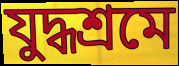
যুদ্ধশ্রমে